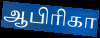
ஆபிரிகா